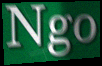
Ngo